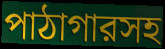
পাঠাগারসহ